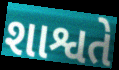
શાશ્વતે